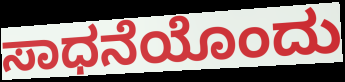
ಸಾಧನೆಯೊಂದು